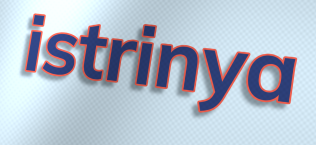
istrinya